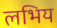
लभिय